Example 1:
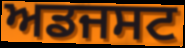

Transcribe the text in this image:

ਅਡਜਸਟ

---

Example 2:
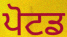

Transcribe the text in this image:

ਪੋਟਡ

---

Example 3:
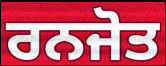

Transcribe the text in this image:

ਰਨਜੋਤ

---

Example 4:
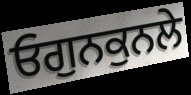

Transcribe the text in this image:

ਓਗੁਨਕੁਨਲੇ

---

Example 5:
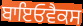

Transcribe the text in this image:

ਬਾਇਓਵੈਕਸ